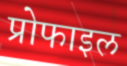
प्रोफाइल